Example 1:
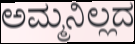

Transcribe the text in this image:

ಅಮ್ಮನಿಲ್ಲದ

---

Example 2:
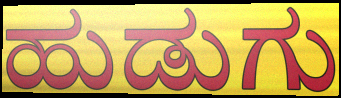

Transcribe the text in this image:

ಹುಡುಗು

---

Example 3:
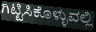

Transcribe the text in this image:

ಗಿಟ್ಟಿಸಿಕೊಳ್ಳುವಲ್ಲಿ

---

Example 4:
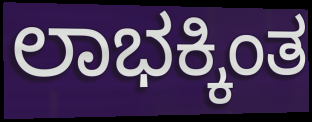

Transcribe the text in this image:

ಲಾಭಕ್ಕಿಂತ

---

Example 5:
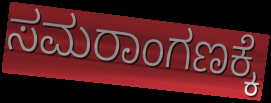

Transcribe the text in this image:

ಸಮರಾಂಗಣಕ್ಕೆ